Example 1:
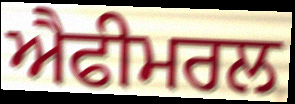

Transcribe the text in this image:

ਐਫੀਮਰਲ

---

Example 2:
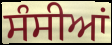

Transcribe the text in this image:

ਸੰਸੀਆਂ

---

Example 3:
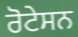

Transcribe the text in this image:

ਰੋਟੇਸਨ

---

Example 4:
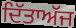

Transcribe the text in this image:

ਦਿੱਤਾਅੱਜ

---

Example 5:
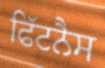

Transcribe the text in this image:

ਫਿੱਟਨੈਸ